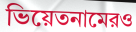
ভিয়েতনামেরও